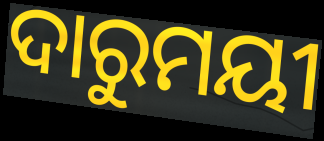
ଦାରୁମୟୀ